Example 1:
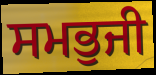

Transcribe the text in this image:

ਸਮਭੁਜੀ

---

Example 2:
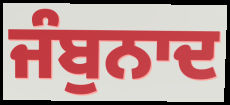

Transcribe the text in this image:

ਜੰਬੁਨਾਦ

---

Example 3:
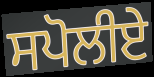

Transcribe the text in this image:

ਸਪੋਲੀਏ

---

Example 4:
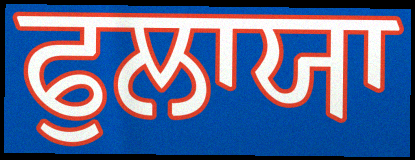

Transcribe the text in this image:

ਫੁਲਾਯਾ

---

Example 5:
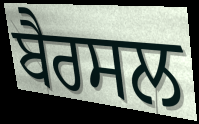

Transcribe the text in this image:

ਬੈਰਸਲ